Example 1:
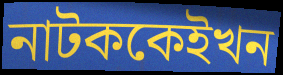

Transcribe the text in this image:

নাটককেইখন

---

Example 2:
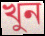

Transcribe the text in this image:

খুন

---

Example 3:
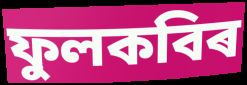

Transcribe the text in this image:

ফুলকবিৰ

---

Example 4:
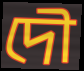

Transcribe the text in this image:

দৌ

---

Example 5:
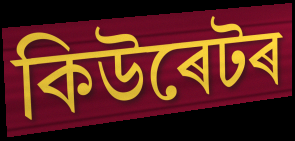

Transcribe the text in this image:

কিউৰেটৰ